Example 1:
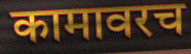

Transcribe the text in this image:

कामावरच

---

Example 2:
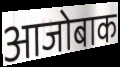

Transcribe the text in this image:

आजोबाक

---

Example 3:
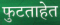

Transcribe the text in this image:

फुटताहेत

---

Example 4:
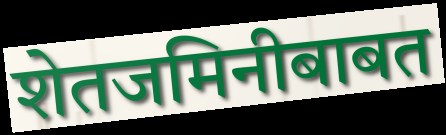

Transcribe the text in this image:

शेतजमिनीबाबत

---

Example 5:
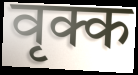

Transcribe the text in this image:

वृक्क